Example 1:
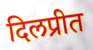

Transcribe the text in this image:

दिलप्रीत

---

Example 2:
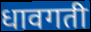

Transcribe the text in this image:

धावगती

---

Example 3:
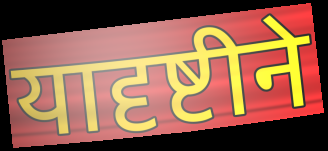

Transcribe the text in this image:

यादृष्टीने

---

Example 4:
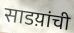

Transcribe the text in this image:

साडय़ांची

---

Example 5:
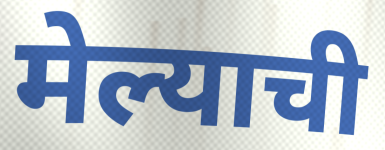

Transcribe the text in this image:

मेल्याची